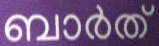
ബാർത്